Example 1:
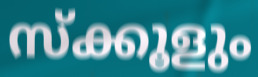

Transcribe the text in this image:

സ്ക്കൂളും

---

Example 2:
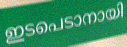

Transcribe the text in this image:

ഇടപെടാനായി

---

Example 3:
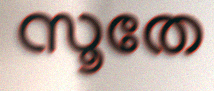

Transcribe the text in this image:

സൂതേ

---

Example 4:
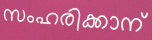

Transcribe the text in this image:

സംഹരിക്കാന്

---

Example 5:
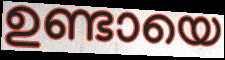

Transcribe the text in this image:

ഉണ്ടായെ